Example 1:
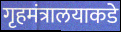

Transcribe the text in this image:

गृहमंत्रालयाकडे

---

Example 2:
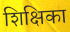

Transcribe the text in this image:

शिक्षिका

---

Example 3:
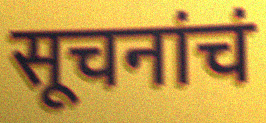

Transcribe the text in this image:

सूचनांचं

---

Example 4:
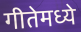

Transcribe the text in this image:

गीतेमध्ये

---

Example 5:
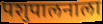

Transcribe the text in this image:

पशुपालनाला